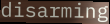
disarming